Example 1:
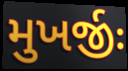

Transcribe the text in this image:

મુખર્જીઃ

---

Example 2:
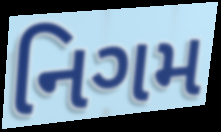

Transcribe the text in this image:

નિગમ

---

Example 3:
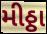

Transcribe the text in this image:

મીઠ્ઠા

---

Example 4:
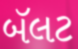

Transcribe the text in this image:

બૅલટ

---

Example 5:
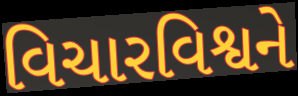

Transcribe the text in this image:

વિચારવિશ્વને